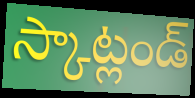
స్కాట్లండ్